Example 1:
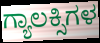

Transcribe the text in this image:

ಗ್ಯಾಲಕ್ಸಿಗಳ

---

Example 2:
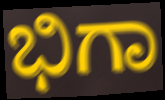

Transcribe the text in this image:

ಭಿಗಾ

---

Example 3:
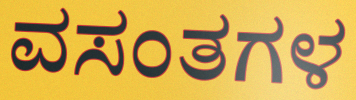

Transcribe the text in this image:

ವಸಂತಗಳ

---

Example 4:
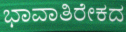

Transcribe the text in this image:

ಭಾವಾತಿರೇಕದ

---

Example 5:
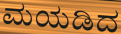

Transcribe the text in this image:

ಮಯಡಿದ